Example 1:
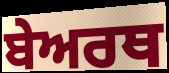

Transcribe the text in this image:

ਬੇਅਰਥ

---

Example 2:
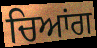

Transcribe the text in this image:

ਚਿਆਂਗ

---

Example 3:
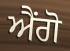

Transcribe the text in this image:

ਐਂਗੋ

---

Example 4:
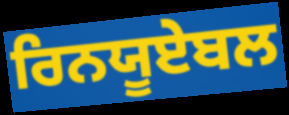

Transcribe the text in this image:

ਰਿਨਯੂਏਬਲ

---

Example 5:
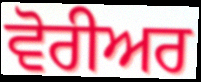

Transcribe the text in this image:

ਵੋਰੀਅਰ